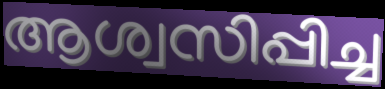
ആശ്വസിപ്പിച്ച